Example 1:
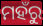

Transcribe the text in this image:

ମହଁରୁ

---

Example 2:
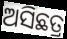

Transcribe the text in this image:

ଅସିଛତ୍ର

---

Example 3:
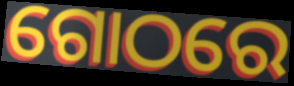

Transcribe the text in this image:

ଗୋଠରେ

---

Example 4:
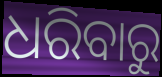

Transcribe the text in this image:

ଧରିବାରୁ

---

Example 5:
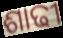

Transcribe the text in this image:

ଶାଢୀ